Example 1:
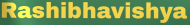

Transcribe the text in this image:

Rashibhavishya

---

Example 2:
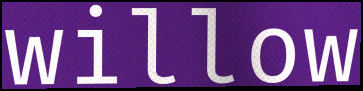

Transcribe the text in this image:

willow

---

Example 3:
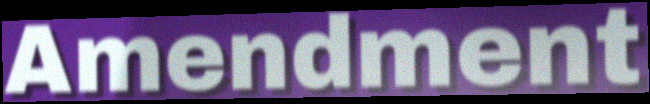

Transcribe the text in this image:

Amendment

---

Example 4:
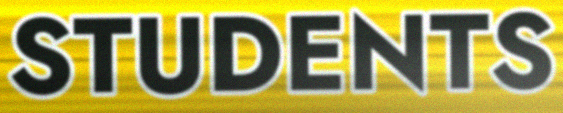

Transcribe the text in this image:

STUDENTS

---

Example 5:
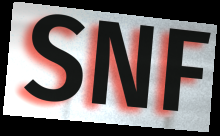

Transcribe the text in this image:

SNF